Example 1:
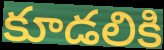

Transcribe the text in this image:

కూడలికి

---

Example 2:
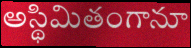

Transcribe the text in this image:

అస్థిమితంగానూ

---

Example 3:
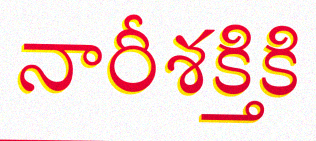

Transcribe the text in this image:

నారీశక్తికి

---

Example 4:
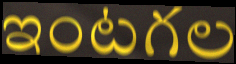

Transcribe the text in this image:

ఇంటగల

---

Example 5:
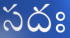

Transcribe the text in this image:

సదః